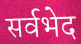
सर्वभेद